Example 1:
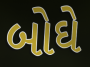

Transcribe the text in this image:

બોઘે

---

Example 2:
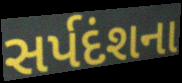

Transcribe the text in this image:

સર્પદંશના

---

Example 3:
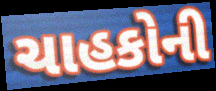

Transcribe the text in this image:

ચાહકોની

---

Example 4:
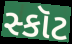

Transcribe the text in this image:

સ્કૉટ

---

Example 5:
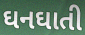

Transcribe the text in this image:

ઘનઘાતી